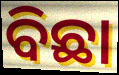
ବିଛା